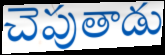
చెపుతాడు